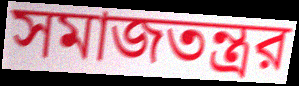
সমাজতন্ত্রর